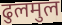
ढुलमुल